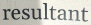
resultant